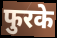
फुरके